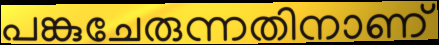
പങ്കുചേരുന്നതിനാണ്